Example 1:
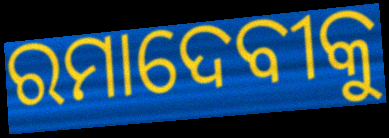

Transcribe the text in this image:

ରମାଦେବୀକୁ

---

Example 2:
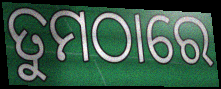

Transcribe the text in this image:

ତୁମଠାରେ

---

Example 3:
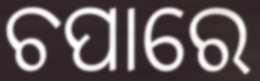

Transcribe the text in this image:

ଚପାରେ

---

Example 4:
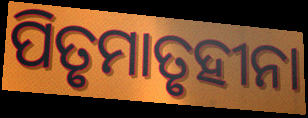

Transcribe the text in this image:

ପିତୃମାତୃହୀନା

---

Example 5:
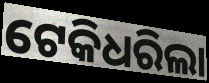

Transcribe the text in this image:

ଟେକିଧରିଲା